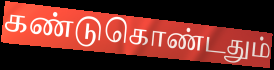
கண்டுகொண்டதும்